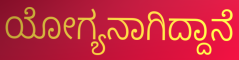
ಯೋಗ್ಯನಾಗಿದ್ದಾನೆ